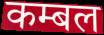
कम्बल